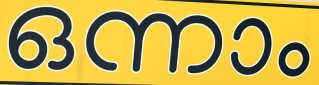
ഒന്നാം